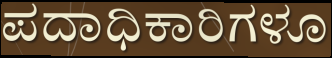
ಪದಾಧಿಕಾರಿಗಳೂ